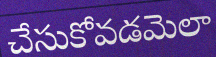
చేసుకోవడమెలా